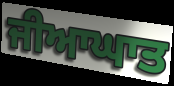
ਜੀਆਘਾਤ